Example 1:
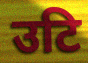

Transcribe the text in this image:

उटि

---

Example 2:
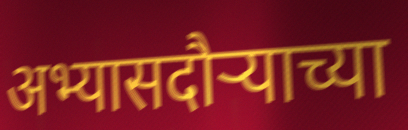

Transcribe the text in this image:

अभ्यासदौऱ्याच्या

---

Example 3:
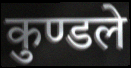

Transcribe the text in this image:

कुण्डले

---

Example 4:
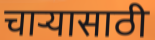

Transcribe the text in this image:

चार्‍यासाठी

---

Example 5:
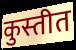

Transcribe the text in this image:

कुस्तीत